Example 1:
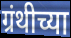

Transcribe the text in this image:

ग्रंथीच्या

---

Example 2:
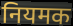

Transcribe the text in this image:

नियमक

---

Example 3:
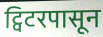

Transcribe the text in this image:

ट्विटरपासून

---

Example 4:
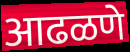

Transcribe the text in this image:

आढळणे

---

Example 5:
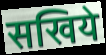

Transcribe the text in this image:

सखिये